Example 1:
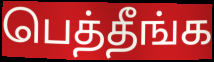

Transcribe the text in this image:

பெத்தீங்க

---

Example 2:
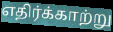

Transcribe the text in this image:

எதிர்க்காற்று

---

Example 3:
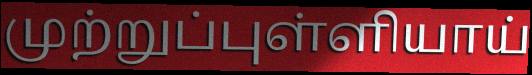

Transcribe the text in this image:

முற்றுப்புள்ளியாய்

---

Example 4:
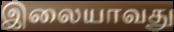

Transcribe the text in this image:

இலையாவது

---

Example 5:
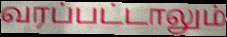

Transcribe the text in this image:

வரப்பட்டாலும்